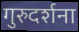
गुरुदर्शना